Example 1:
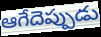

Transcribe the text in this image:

ఆగేదెప్పుడు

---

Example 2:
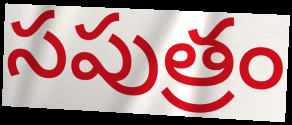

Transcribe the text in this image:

సపుత్రం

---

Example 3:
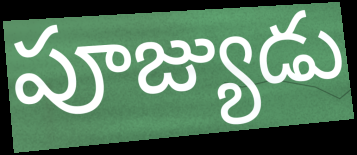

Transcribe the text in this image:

పూజ్యుడు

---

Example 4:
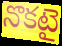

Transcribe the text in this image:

నొకటై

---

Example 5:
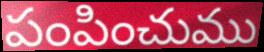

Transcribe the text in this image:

పంపించుము